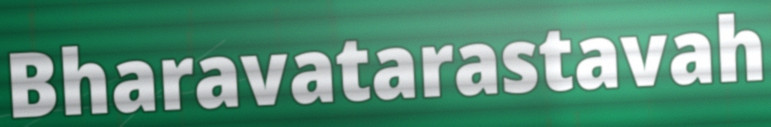
Bharavatarastavah